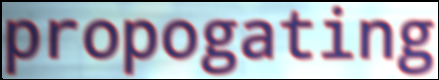
propogating